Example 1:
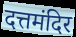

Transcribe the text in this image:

दत्तमंदिर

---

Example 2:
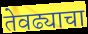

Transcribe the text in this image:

तेवढ्याचा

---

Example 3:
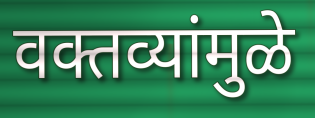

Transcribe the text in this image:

वक्तव्यांमुळे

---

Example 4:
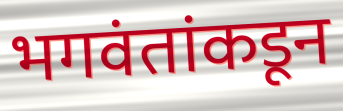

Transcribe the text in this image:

भगवंतांकडून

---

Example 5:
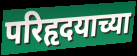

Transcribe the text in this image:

परिहृदयाच्या